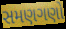
સમણગણો